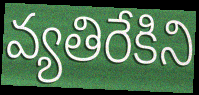
వ్యతిరేకిని